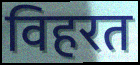
विहरत